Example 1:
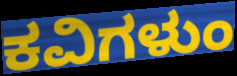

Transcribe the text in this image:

ಕವಿಗಳುಂ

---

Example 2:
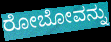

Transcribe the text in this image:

ರೋಬೋವನ್ನು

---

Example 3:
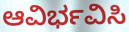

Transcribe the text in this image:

ಆವಿರ್ಭವಿಸಿ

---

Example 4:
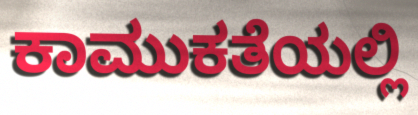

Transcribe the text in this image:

ಕಾಮುಕತೆಯಲ್ಲಿ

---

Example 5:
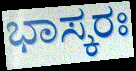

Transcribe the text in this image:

ಭಾಸ್ಕರಃ